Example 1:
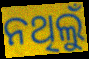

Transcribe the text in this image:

ନଥିଲୁଁ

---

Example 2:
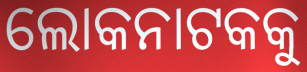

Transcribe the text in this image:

ଲୋକନାଟକକୁ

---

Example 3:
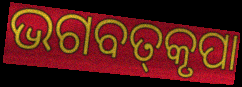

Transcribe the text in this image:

ଭଗବତ୍‌କୃପା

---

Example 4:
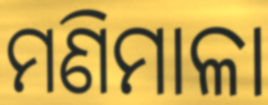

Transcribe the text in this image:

ମଣିମାଳା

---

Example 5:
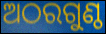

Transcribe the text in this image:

ଅଠରଗୁଣ୍ଠ